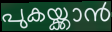
പുകയ്ക്കാൻ